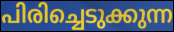
പിരിച്ചെടുക്കുന്ന